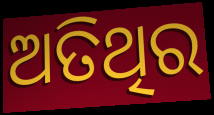
ଅତିଥିର